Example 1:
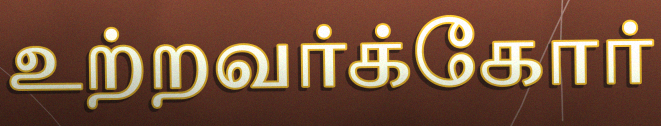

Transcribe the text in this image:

உற்றவர்க்கோர்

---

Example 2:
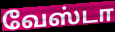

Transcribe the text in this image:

வேஸ்டா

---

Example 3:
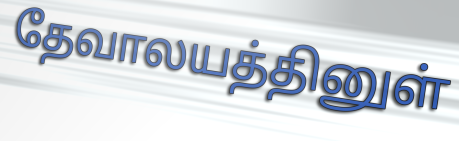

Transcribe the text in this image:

தேவாலயத்தினுள்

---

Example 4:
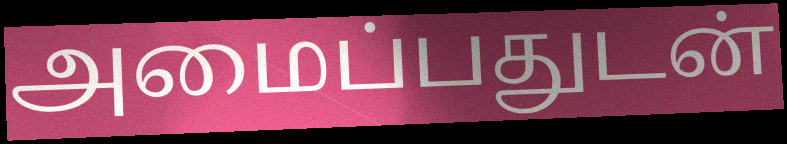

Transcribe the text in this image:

அமைப்பதுடன்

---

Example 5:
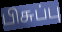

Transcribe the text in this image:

பிசுப்பு